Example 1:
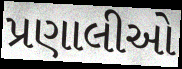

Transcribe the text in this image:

પ્રણાલીઓ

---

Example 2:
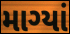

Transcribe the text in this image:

માગ્યાં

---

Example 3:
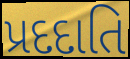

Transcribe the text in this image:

પ્રદદાતિ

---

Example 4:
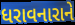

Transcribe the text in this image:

ધરાવનારાને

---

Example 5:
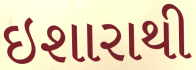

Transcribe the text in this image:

ઇશારાથી